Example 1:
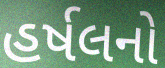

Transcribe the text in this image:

હર્ષલનો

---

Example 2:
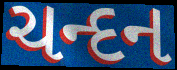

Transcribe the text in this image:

ચન્દન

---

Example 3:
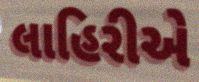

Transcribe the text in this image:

લાહિરીએ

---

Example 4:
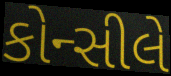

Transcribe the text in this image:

કોન્સીલે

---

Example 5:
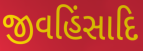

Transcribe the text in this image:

જીવહિંસાદિ